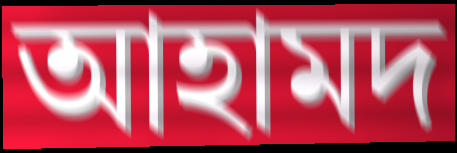
আহামদ